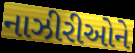
નાઝીરીઓને